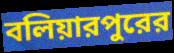
বলিয়ারপুরের